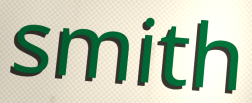
smith